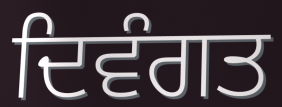
ਦਿਵੰਗਤ